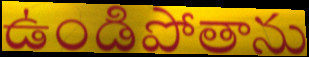
ఉండిపోతాను